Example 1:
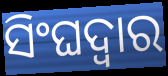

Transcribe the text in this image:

ସିଂଘଦ୍ୱାର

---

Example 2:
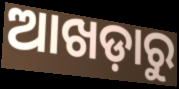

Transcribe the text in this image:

ଆଖଡ଼ାରୁ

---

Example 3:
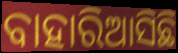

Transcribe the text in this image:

ବାହାରିଆସିଛି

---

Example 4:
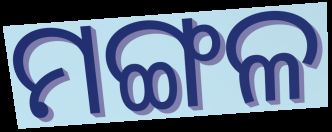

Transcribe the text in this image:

ମଙ୍ଗଳ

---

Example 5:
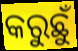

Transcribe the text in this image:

କରୁଛୁଁ